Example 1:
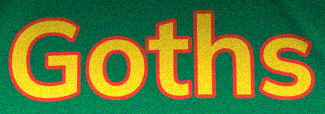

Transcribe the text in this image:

Goths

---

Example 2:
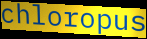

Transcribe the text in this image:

chloropus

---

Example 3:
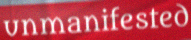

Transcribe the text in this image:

unmanifested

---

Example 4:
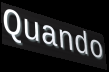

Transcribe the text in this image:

Quando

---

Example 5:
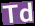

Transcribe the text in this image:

Td